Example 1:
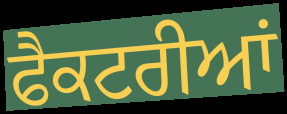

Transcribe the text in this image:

ਫੈਕਟਰੀਆਂ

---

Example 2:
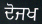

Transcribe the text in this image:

ਦੋਜਖ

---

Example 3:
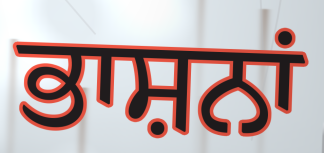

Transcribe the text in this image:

ਭਾਸ਼ਨਾਂ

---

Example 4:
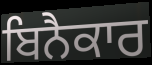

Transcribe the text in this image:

ਬਿਨੈਕਾਰ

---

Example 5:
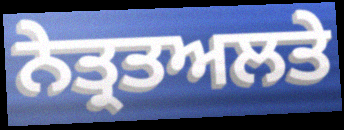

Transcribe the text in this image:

ਨੇਤ੍ਰਤਅਲਤੇ